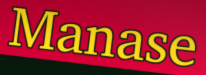
Manase